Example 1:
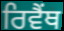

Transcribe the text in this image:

ਰਿਵੈਂਥ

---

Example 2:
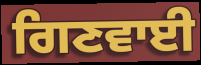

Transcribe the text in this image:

ਗਿਣਵਾਈ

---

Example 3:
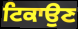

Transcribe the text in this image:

ਟਿਕਾਉਣ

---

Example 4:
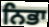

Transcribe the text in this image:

ਨਿਭਾ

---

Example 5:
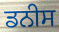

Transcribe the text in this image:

ਡਨੀਸ